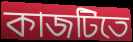
কাজটিতে